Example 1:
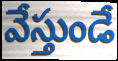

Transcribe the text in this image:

వేస్తుండే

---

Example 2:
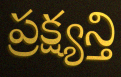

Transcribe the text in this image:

ప్రక్ష్యన్తి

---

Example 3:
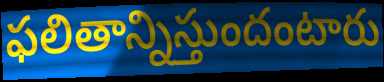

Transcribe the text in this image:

ఫలితాన్నిస్తుందంటారు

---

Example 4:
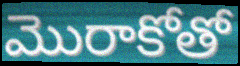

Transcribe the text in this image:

మొరాకోతో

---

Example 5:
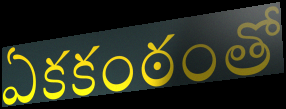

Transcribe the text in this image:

ఏకకంఠంతో